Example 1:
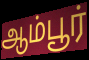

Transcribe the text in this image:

ஆம்பூர்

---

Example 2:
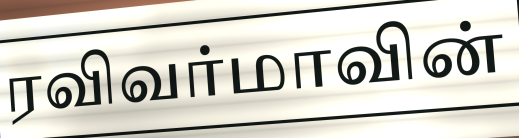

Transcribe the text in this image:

ரவிவர்மாவின்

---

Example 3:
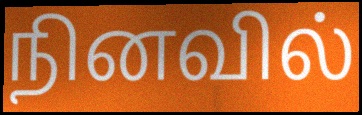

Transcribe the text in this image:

நினவில்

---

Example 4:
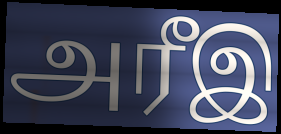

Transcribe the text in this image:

அரீஇ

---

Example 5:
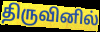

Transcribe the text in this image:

திருவினில்